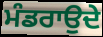
ਮੰਡਰਾਉਦੇ